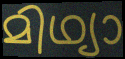
മിഥ്യാ